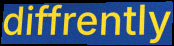
diffrently